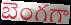
బెంగగా